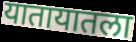
यातायातला